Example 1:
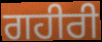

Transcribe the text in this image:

ਗਹੀਰੀ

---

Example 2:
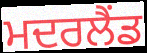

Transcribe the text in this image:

ਮਦਰਲੈਂਡ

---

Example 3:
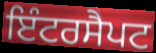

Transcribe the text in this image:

ਇੰਟਰਸੈਪਟ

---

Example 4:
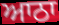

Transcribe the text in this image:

ਆਠਾ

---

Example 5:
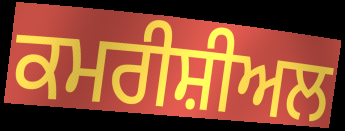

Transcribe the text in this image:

ਕਮਰੀਸ਼ੀਅਲ